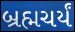
બ્રહ્મચર્યં